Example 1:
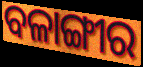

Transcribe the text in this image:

ବଳାଙ୍ଗୀର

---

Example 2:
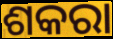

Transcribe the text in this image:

ଶକରା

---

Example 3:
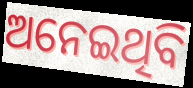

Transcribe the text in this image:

ଅନେଇଥିବି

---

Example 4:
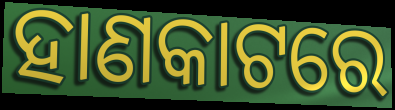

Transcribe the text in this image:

ହାଣକାଟରେ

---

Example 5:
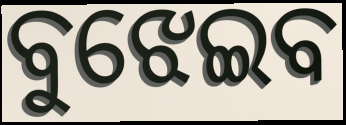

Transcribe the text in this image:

ବୁଝେଇବ